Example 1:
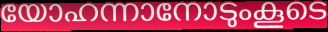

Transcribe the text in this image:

യോഹന്നാനോടുംകൂടെ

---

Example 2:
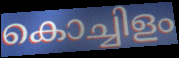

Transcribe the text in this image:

കൊച്ചിളം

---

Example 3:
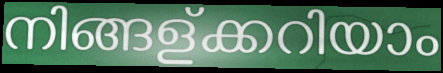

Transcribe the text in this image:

നിങ്ങള്ക്കറിയാം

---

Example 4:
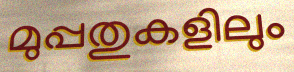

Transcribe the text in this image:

മുപ്പതുകളിലും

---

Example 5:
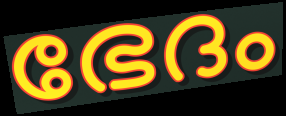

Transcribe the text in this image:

ഭേദം